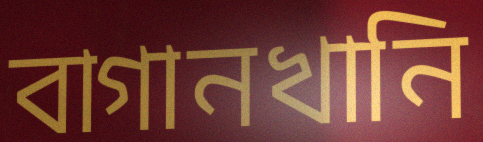
বাগানখানি